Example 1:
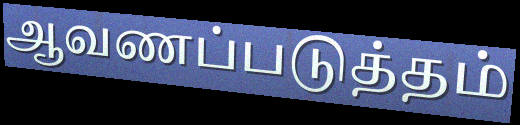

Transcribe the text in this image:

ஆவணப்படுத்தம்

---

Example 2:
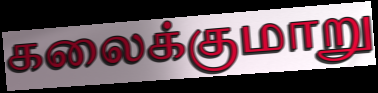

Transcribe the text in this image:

கலைக்குமாறு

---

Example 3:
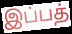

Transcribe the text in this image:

இப்பத்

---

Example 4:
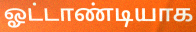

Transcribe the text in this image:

ஓட்டாண்டியாக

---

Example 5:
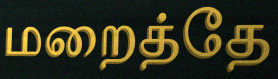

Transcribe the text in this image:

மறைத்தே